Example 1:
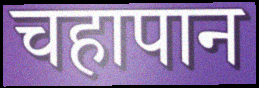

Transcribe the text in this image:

चहापान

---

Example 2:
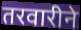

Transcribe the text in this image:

तरवारीने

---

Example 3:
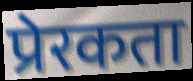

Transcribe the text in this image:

प्रेरकता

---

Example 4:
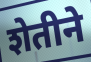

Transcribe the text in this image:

शेतीने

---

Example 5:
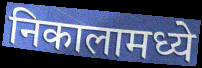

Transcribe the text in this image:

निकालामध्ये